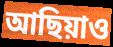
আছিয়াও